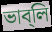
ভাব্‌লি